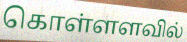
கொள்ளளவில்